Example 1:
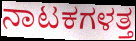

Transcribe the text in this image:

ನಾಟಕಗಳತ್ತ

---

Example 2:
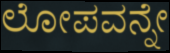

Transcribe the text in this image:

ಲೋಪವನ್ನೇ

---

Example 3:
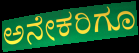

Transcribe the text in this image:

ಅನೇಕರಿಗೂ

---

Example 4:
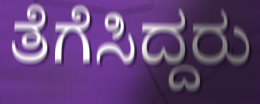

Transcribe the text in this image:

ತೆಗೆಸಿದ್ದರು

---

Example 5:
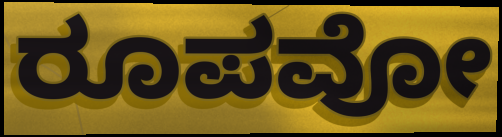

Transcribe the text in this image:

ರೂಪವೋ